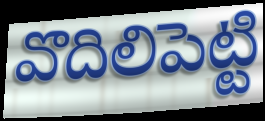
వొదిలిపెట్టి